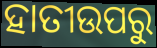
ହାତୀଉପରୁ